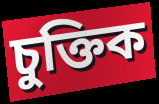
চুক্তিক